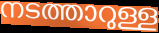
നടത്താറുള്ള